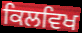
ਕਿਲਵਿਖ